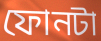
ফোনটা